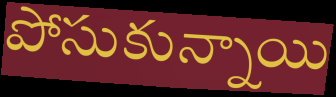
పోసుకున్నాయి